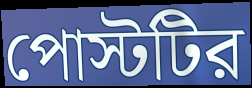
পোস্টটির